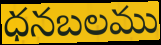
ధనబలము